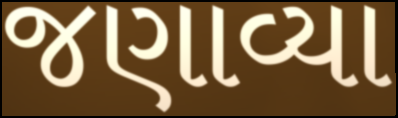
જણાવ્યા